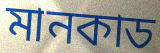
মানকাড